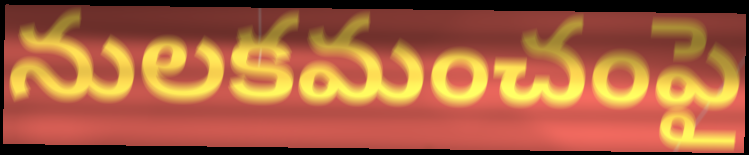
నులకమంచంపై